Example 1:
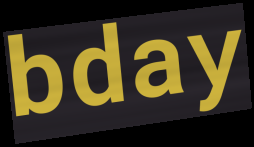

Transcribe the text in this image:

bday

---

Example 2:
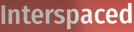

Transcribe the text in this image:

Interspaced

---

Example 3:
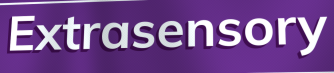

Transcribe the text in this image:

Extrasensory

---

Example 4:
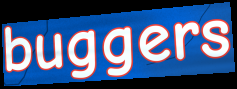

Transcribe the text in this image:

buggers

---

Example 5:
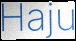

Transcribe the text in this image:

Haju